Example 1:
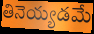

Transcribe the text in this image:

తినెయ్యడమే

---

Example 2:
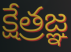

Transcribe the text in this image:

క్షేత్రజ్ఞ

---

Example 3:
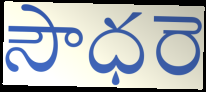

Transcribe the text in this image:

సౌధరె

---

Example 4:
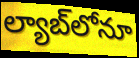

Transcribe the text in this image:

ల్యాబ్‌లోనూ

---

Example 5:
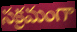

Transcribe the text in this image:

సక్రమంగా